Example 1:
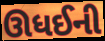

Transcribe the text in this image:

ઊધઈની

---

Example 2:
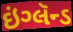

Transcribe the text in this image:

ઇંગ્લૅન્ડ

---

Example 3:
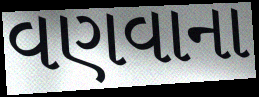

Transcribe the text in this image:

વણવાના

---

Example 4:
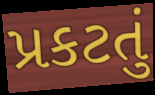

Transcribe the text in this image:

પ્રકટતું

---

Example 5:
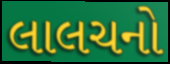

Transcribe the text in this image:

લાલચનો